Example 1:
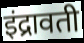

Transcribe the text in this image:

इंद्रावती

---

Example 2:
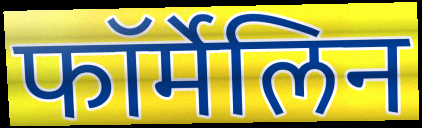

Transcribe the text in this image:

फॉर्मेलिन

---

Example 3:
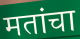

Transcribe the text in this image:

मतांचा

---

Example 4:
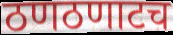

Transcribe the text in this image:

ठणठणाटच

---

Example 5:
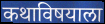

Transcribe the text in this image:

कथाविषयाला